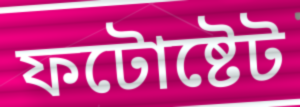
ফটোষ্টেট